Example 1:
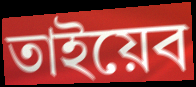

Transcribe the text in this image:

তাইয়েব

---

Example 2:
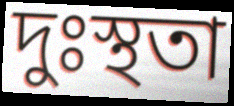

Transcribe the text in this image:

দুঃস্থতা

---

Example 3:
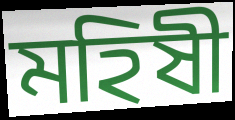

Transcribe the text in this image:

মহিষী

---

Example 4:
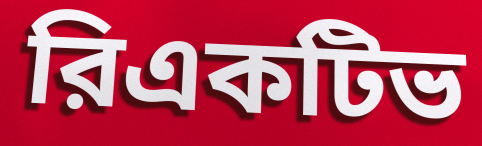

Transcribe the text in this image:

রিএকটিভ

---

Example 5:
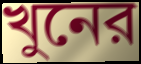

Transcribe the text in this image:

খুনের